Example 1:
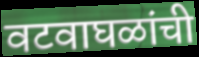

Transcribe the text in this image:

वटवाघळांची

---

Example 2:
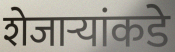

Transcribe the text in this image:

शेजाऱ्यांकडे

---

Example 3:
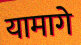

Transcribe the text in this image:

यामागे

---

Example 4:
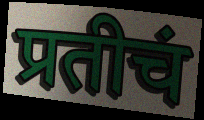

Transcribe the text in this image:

प्रतीचं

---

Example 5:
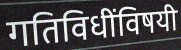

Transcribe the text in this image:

गतिविधींविषयी